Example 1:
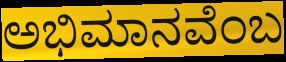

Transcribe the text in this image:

ಅಭಿಮಾನವೆಂಬ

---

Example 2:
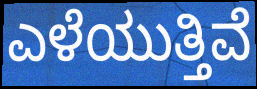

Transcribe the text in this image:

ಎಳೆಯುತ್ತಿವೆ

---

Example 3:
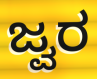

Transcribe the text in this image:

ಜ್ವರ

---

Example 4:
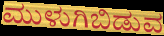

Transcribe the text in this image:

ಮುಳುಗಿಬಿಡುವ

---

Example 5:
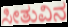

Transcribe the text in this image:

ಸೀತುವಿನ